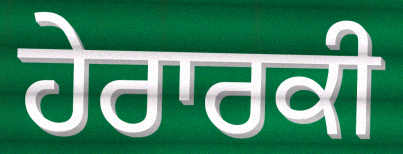
ਹੇਰਾਰਕੀ